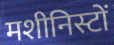
मशीनिस्टों